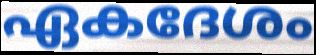
ഏകദേശം